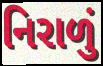
નિરાળું